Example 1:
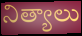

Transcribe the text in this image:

నిత్యాలు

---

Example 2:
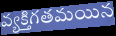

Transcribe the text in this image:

వ్యక్తిగతమయిన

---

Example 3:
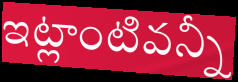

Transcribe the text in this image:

ఇట్లాంటివన్నీ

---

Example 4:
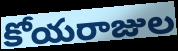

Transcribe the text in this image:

కోయరాజుల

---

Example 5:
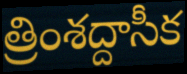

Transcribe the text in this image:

త్రింశద్దాసీక